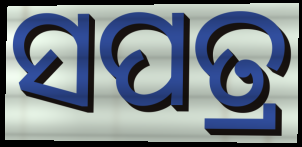
ସପତ୍ର